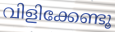
വിളിക്കേണ്ടൂ